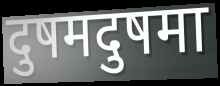
दुषमदुषमा